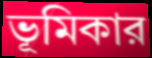
ভূমিকার